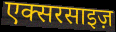
एक्सरसाइज़